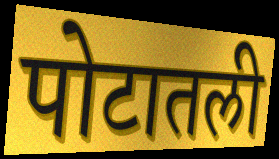
पोटातली